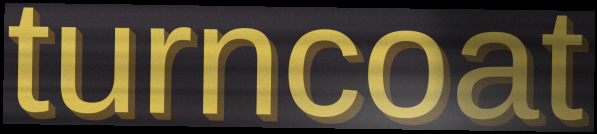
turncoat